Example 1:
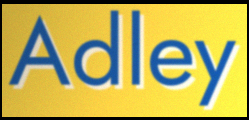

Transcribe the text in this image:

Adley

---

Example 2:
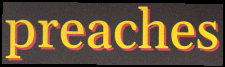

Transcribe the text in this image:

preaches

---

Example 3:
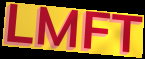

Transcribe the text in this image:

LMFT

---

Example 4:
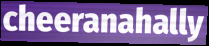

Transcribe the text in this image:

cheeranahally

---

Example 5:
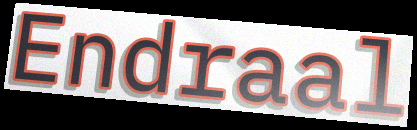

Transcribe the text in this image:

Endraal